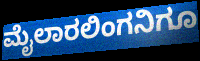
ಮೈಲಾರಲಿಂಗನಿಗೂ